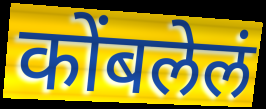
कोंबलेलं